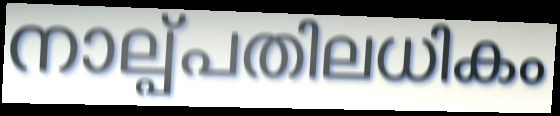
നാല്പ്പതിലധികം